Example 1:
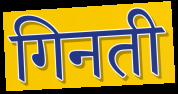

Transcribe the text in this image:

गिनती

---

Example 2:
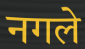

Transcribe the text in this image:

नगले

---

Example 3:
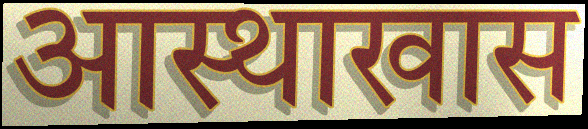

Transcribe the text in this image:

आस्थाखास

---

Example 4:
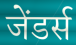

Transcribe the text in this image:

जेंडर्स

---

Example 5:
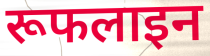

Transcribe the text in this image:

रूफलाइन